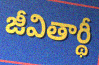
జీవితార్థీ